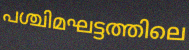
പശ്ചിമഘട്ടത്തിലെ